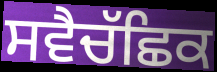
ਸਵੈਚੱਛਿਕ